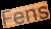
Fens